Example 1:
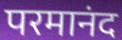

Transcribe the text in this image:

परमानंद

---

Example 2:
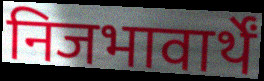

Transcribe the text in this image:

निजभावार्थें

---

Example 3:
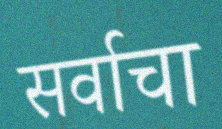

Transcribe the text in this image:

सर्वाचा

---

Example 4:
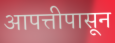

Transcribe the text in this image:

आपत्तीपासून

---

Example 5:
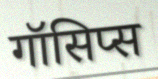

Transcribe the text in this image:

गॉसिप्स